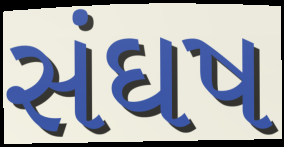
સંઘષ